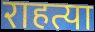
राहत्या